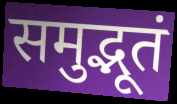
समुद्भूतं